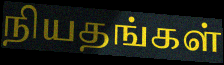
நியதங்கள்